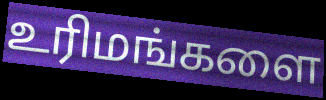
உரிமங்களை